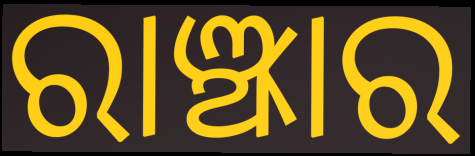
ରାଞ୍ଝାର